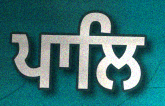
ਪਾਲਿ